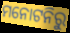
ମନୋଟନିରୁ